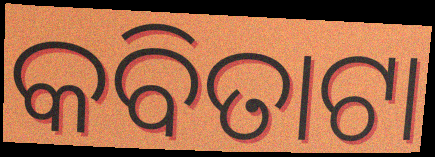
କବିତାଟା